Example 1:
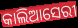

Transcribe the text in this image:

କାଲିଆସେରୀ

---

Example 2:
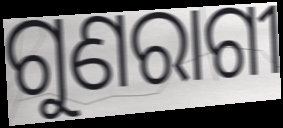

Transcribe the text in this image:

ଗୁଣରାଗୀ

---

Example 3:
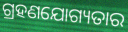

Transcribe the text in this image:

ଗ୍ରହଣଯୋଗ୍ୟତାର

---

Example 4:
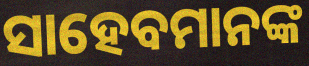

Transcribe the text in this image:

ସାହେବମାନଙ୍କ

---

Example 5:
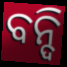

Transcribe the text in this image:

ବନ୍ଦି